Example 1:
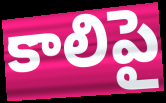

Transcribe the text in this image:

కాలిపై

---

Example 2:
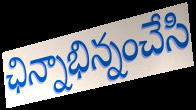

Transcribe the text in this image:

ఛిన్నాభిన్నంచేసి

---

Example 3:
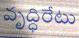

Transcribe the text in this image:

వృద్ధిరేటు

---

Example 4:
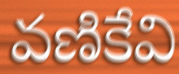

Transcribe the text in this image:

వణికేవి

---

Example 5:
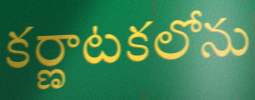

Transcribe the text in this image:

కర్ణాటకలోను